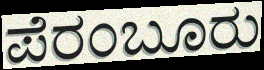
ಪೆರಂಬೂರು